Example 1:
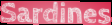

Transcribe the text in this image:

Sardines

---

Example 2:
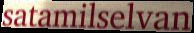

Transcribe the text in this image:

satamilselvan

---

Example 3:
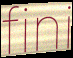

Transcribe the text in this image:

fini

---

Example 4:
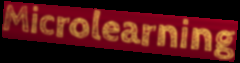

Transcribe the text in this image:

Microlearning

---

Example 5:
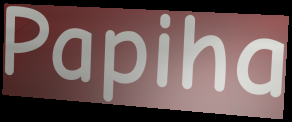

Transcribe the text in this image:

Papiha